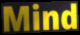
Mind